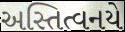
અસ્તિત્વનયે